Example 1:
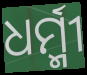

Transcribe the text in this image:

ଧର୍ମ୍ମୀ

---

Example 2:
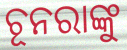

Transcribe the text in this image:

ଚୂନରାଙ୍କୁ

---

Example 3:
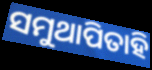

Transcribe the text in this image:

ସମୁଥାପିତାହି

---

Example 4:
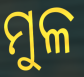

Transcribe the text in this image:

ମୁଳ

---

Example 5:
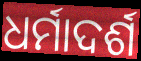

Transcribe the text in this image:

ଧର୍ମାଦର୍ଶ